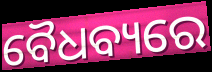
ବୈଧବ୍ୟରେ